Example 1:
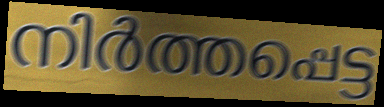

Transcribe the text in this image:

നിർത്തപ്പെട്ട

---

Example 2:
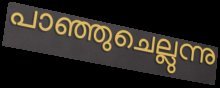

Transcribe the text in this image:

പാഞ്ഞുചെല്ലുന്നു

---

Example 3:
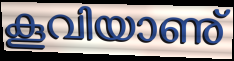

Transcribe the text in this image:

കൂവിയാണു്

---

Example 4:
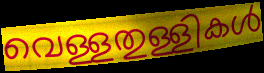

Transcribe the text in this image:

വെള്ളതുള്ളികൾ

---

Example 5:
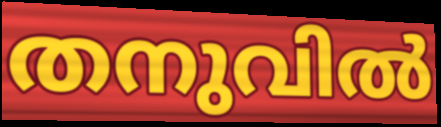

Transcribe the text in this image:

തനുവിൽ